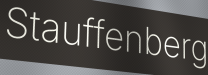
Stauffenberg